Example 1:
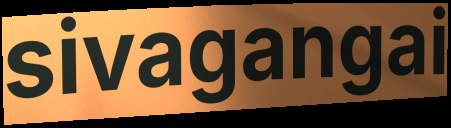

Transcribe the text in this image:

sivagangai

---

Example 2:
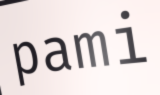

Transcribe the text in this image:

pami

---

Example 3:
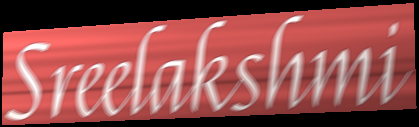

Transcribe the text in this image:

Sreelakshmi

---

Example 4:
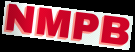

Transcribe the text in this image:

NMPB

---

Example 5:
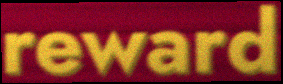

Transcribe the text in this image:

reward